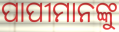
ପାପୀମାନଙ୍କୁ